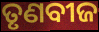
ତୃଣବୀଜ